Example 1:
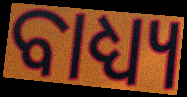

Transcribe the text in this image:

ବାଧ୍ୟ୍ୟ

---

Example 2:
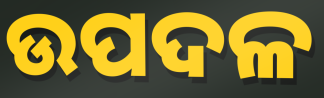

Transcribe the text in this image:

ଉପଦଳ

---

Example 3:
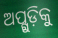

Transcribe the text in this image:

ଅପ୍ଗୁଡ଼ିକୁ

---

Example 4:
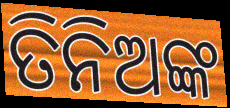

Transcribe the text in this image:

ତିନିଅଙ୍କ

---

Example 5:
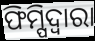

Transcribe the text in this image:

ଫିମ୍ପିଦ୍ଵାରା